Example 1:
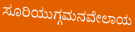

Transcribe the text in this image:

ಸೂರಿಯುಗ್ಗಮನವೇಲಾಯ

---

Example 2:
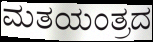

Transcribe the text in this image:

ಮತಯಂತ್ರದ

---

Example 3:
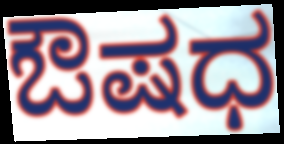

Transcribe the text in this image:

ಔಷಧ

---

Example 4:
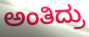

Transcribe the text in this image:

ಅಂತಿದ್ರು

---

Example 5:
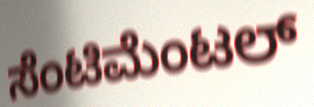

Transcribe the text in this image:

ಸೆಂಟಿಮೆಂಟಲ್